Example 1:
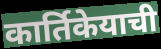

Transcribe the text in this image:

कार्तिकेयाची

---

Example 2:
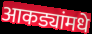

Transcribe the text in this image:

आकड्यांमधे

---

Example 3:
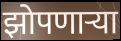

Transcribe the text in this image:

झोपणाऱ्या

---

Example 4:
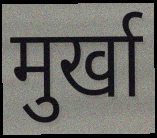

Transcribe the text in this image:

मुर्खा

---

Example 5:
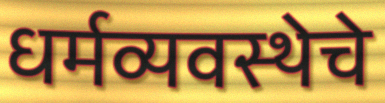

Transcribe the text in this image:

धर्मव्यवस्थेचे